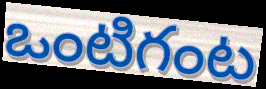
ఒంటిగంట